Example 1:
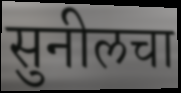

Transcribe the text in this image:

सुनीलचा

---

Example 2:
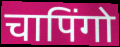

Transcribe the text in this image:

चापिंगो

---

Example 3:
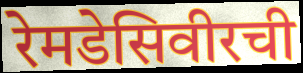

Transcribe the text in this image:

रेमडेसिवीरची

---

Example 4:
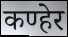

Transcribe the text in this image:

कण्हेर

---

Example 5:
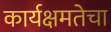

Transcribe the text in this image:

कार्यक्षमतेचा